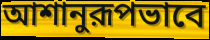
আশানুরূপভাবে